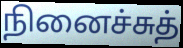
நினைச்சுத்